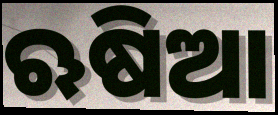
ଋଷିଆ